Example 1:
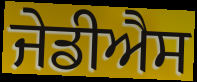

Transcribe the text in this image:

ਜੇਡੀਐਸ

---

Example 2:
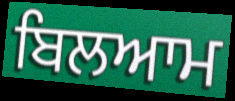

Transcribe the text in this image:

ਬਿਲਆਮ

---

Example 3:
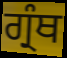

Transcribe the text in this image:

ਗ੍ਰੰਥ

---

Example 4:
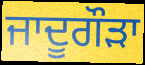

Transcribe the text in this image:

ਜਾਦੂਗੌੜਾ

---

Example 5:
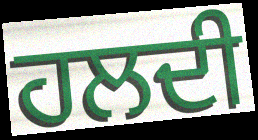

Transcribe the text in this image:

ਹਲਦੀ